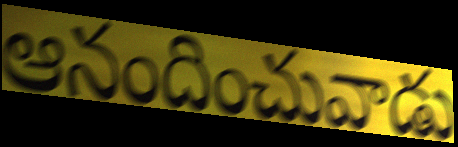
ఆనందించువాడు